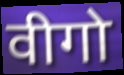
वीगो